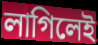
লাগিলেই